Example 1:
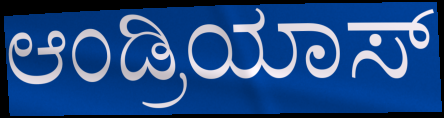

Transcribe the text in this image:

ಆಂಡ್ರಿಯಾಸ್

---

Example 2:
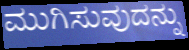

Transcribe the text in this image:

ಮುಗಿಸುವುದನ್ನು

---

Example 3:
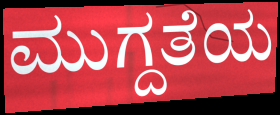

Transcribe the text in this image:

ಮುಗ್ದತೆಯ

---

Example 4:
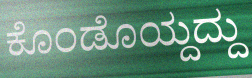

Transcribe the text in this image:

ಕೊಂಡೊಯ್ದದ್ದು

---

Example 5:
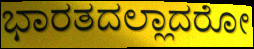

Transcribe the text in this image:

ಭಾರತದಲ್ಲಾದರೋ